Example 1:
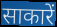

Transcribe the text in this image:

साकारें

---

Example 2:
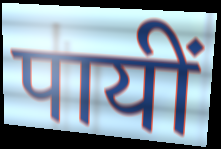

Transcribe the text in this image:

पायीं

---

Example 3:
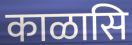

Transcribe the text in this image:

काळासि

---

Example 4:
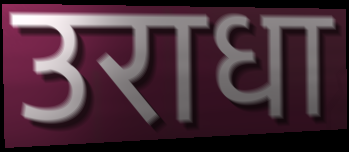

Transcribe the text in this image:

उराधा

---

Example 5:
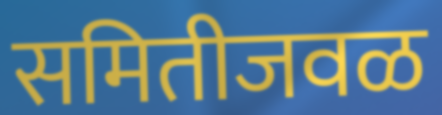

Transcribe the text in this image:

समितीजवळ